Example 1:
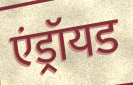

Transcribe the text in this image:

एंड्रॉयड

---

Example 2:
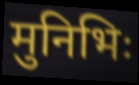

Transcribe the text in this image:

मुनिभिः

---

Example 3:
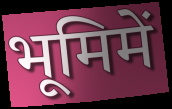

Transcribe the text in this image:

भूमिमें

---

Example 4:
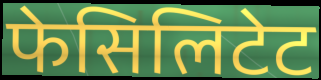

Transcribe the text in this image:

फेसिलिटेट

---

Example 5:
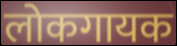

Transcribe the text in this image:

लोकगायक